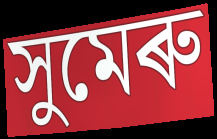
সুমেৰু